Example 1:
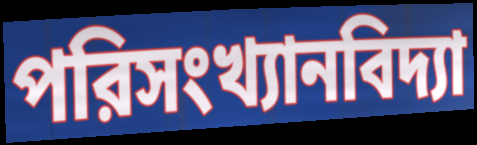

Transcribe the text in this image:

পরিসংখ্যানবিদ্যা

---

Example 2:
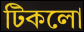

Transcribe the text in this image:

টিকলো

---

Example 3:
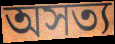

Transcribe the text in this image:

অসত্য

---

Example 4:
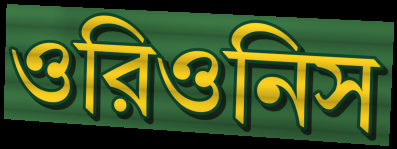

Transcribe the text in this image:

ওরিওনিস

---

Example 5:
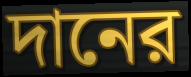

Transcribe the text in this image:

দানের